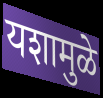
यशामुळे